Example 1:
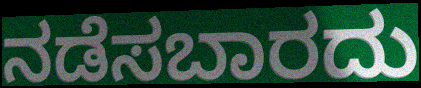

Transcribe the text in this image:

ನಡೆಸಬಾರದು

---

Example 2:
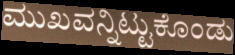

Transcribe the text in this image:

ಮುಖವನ್ನಿಟ್ಟುಕೊಂಡು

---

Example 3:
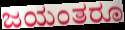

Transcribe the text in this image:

ಜಯಂತರೂ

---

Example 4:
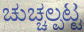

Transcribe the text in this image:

ಚುಚ್ಚಲ್ಪಟ್ಟ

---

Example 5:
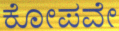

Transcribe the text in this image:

ಕೋಪವೇ